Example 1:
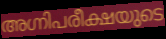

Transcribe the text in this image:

അഗ്നിപരീക്ഷയുടെ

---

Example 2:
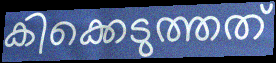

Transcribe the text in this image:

കിക്കെടുത്തത്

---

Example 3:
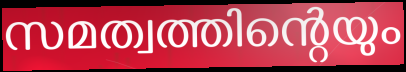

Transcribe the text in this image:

സമത്വത്തിന്റെയും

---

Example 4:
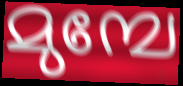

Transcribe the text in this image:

മുമ്പേ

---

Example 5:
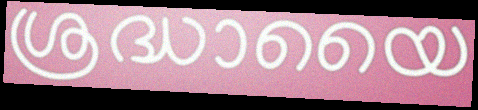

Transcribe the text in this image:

ശ്രദ്ധായൈ